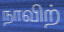
நாவிற்